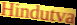
Hindutva